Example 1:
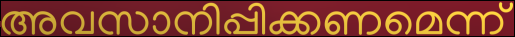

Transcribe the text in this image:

അവസാനിപ്പിക്കണമെന്ന്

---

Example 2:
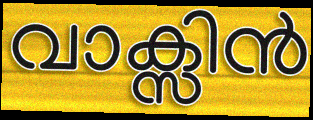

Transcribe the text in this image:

വാക്സിൻ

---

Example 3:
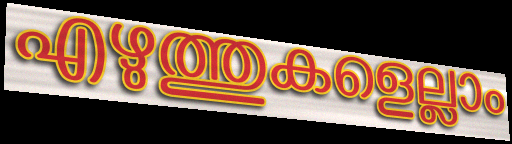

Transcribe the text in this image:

എഴുത്തുകളെല്ലാം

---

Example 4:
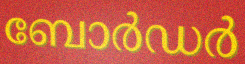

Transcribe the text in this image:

ബോർഡർ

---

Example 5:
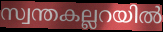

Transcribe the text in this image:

സ്വന്തകല്ലറയിൽ